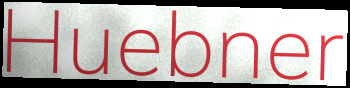
Huebner